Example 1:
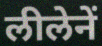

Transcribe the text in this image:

लीलेनें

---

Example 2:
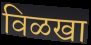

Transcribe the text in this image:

विळखा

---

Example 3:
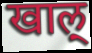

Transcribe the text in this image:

खाल्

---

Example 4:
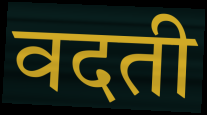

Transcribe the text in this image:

वदती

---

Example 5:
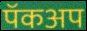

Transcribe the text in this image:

पॅकअप